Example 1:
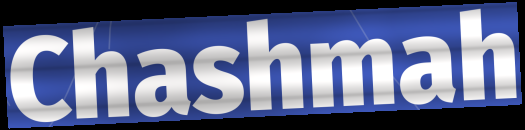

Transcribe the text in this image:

Chashmah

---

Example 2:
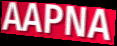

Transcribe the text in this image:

AAPNA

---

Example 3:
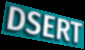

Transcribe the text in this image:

DSERT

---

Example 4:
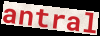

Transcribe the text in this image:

antral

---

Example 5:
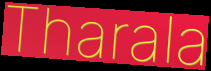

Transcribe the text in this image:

Tharala